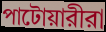
পাটোয়ারীরা